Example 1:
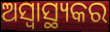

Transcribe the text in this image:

ଅସ୍ୱାସ୍ଥ୍ୟକର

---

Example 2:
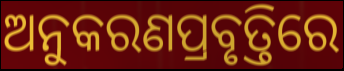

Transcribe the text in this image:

ଅନୁକରଣପ୍ରବୃତ୍ତିରେ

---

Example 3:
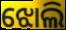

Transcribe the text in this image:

ଝୋଲି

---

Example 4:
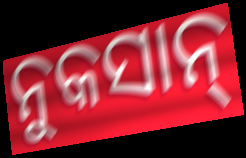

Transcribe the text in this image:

ନୁକସାନ୍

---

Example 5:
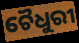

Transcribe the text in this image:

ଚୈଧୁରୀ